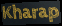
Kharap